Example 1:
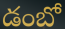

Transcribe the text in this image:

డంబో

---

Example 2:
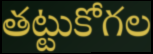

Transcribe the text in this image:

తట్టుకోగల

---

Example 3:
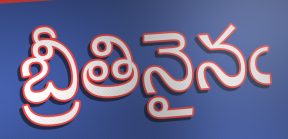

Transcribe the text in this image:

బ్రీతినైనఁ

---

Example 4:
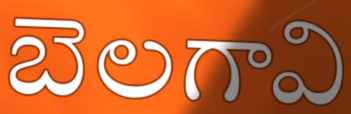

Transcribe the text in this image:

బెలగావి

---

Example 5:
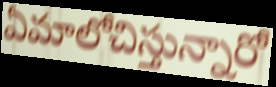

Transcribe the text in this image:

ఏమాలోచిస్తున్నారో